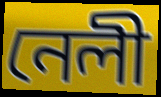
নেলী